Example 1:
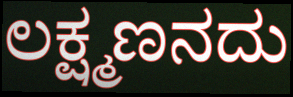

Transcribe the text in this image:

ಲಕ್ಷ್ಮಣನದು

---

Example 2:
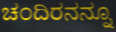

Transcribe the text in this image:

ಚಂದಿರನನ್ನೂ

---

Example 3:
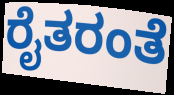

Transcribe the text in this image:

ರೈತರಂತೆ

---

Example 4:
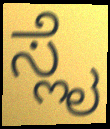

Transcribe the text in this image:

ಸ್ಲೈ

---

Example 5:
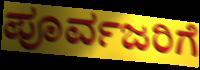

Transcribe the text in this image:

ಪೂರ್ವಜರಿಗೆ